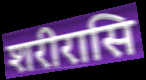
शरीरासि